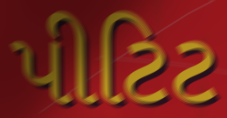
પીટિટ